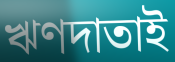
ঋণদাতাই